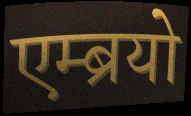
एम्ब्रयो